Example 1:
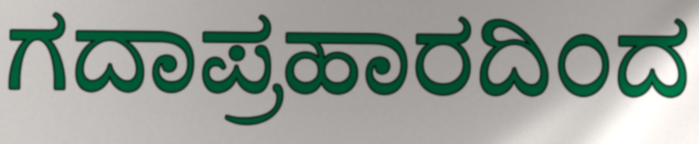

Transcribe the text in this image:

ಗದಾಪ್ರಹಾರದಿಂದ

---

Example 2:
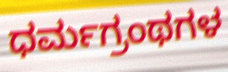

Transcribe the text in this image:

ಧರ್ಮಗ್ರಂಥಗಳ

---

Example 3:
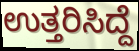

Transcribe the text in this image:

ಉತ್ತರಿಸಿದ್ದೆ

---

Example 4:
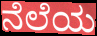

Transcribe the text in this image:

ನೆಲೆಯ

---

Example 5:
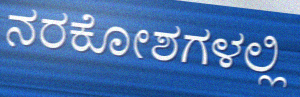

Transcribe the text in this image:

ನರಕೋಶಗಳಲ್ಲಿ